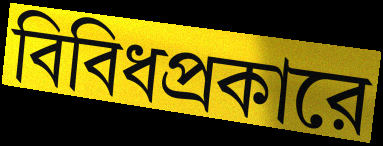
বিবিধপ্রকারে